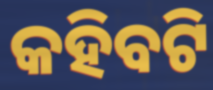
କହିବଟି